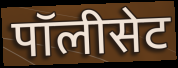
पॉलीसेट